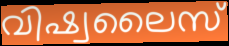
വിഷ്വലൈസ്